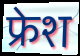
फ्रेश